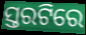
ସ୍ତରଟିରେ